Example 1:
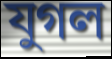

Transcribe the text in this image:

যুগল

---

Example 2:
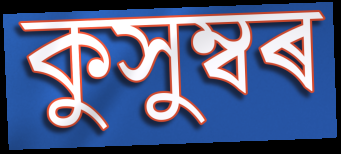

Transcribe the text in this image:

কুসুম্বৰ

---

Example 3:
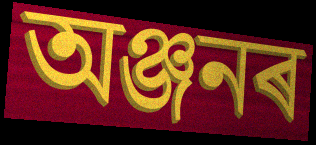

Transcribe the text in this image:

অঞ্জনৰ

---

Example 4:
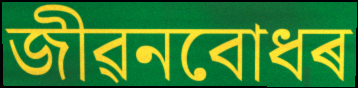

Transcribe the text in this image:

জীৱনবোধৰ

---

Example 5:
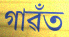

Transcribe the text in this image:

গাৱঁত